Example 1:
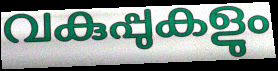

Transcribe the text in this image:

വകുപ്പുകളും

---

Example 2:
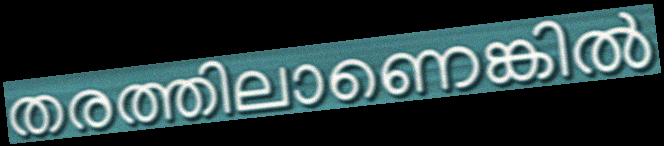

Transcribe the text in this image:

തരത്തിലാണെങ്കിൽ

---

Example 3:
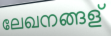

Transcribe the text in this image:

ലേഖനങ്ങള്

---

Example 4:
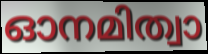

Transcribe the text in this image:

ഓനമിത്വാ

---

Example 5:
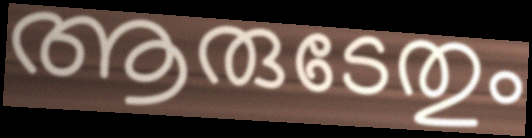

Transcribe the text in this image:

ആരുടേതും